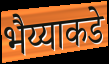
भैय्याकडे